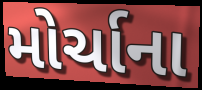
મોર્ચાના